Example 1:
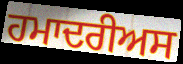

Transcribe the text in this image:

ਹਮਾਦਰੀਅਸ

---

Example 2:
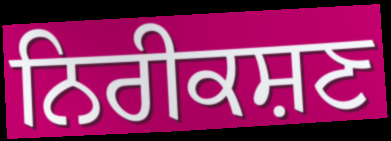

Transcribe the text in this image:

ਨਿਰੀਕਸ਼ਣ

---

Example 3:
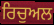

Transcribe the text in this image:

ਰਿਚੁਅਲ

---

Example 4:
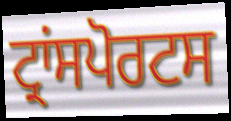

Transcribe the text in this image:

ਟ੍ਰਾਂਸਪੋਰਟਸ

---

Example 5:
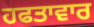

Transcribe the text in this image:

ਹਫਤਾਵਾਰ